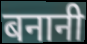
बनानी